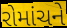
રોમાંચને